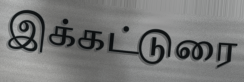
இக்கட்டுரை